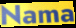
Nama